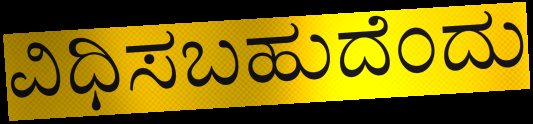
ವಿಧಿಸಬಹುದೆಂದು